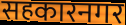
सहकारनगर